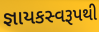
જ્ઞાયકસ્વરૂપથી